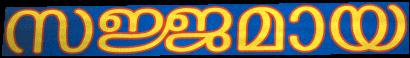
സജ്ജമായ